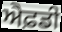
ਐਫ਼ਡੀ